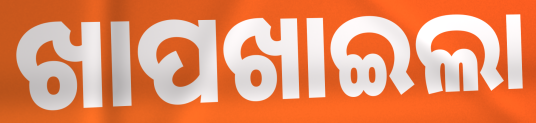
ଖାପଖାଇଲା